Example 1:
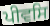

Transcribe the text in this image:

ਪੀਵਸਿ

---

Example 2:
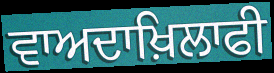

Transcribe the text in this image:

ਵਾਅਦਾਖ਼ਿਲਾਫੀ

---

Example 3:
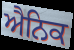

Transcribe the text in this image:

ਐਨਿਕ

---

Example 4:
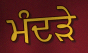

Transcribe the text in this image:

ਮੰਦੜੇ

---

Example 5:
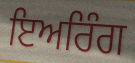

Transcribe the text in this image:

ਇਅਰਿੰਗ